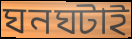
ঘনঘটাই